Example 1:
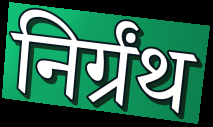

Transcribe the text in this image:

निर्ग्रंथ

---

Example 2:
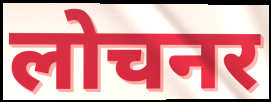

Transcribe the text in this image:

लोचनर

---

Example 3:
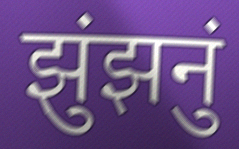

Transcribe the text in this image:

झुंझनुं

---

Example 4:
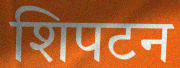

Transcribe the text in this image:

शिपटन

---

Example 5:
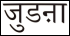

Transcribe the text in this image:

जुडऩा